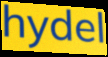
hydel